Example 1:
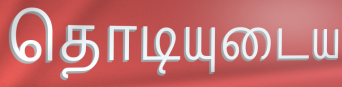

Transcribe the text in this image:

தொடியுடைய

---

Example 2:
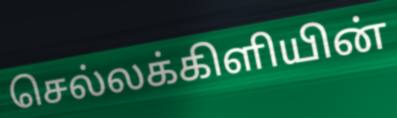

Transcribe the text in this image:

செல்லக்கிளியின்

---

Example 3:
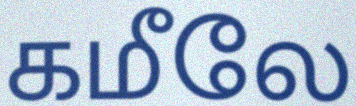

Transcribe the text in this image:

கமீலே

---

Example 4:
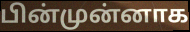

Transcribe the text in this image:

பின்முன்னாக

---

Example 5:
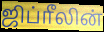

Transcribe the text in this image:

ஜிப்ரீலின்